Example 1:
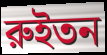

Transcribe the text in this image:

রুইতন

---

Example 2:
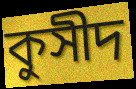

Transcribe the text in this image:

কুসীদ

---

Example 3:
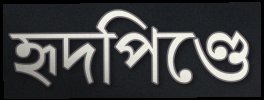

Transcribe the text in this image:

হৃদপিণ্ডে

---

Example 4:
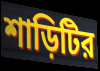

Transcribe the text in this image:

শাড়িটির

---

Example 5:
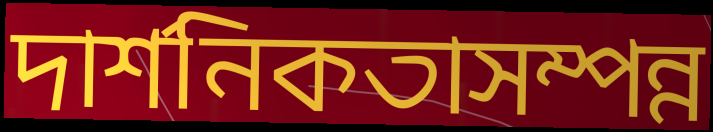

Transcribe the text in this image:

দার্শনিকতাসম্পন্ন